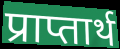
प्राप्तार्थ